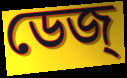
ডেজ্